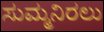
ಸುಮ್ಮನಿರಲು